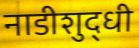
नाडीशुद्धी